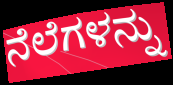
ನೆಲೆಗಳನ್ನು